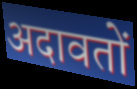
अदावतों